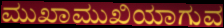
ಮುಖಾಮುಖಿಯಾಗುವ